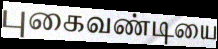
புகைவண்டியை